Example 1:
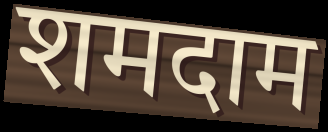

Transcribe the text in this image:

शमदाम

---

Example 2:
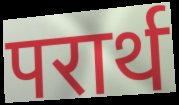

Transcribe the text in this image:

परार्थ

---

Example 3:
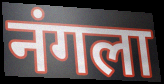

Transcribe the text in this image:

नंगला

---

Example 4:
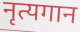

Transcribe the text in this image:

नृत्यगान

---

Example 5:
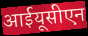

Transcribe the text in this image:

आईयूसीएन